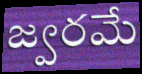
జ్వరమే